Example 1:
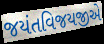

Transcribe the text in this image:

જયંતવિજયજીએ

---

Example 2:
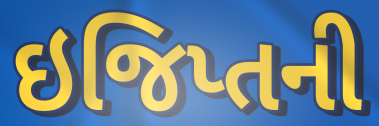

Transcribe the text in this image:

ઇજિપ્તની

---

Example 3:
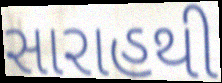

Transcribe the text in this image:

સારાહથી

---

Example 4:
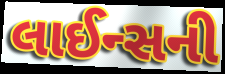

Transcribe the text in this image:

લાઈન્સની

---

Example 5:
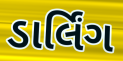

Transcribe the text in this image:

ડાર્લિંગ